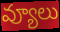
వ్యూలు